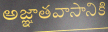
అజ్ఞాతవాసానికి